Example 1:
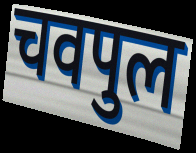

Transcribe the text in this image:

चवपुल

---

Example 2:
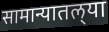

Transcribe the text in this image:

सामान्यातल्या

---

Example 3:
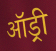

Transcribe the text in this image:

ऑड्री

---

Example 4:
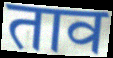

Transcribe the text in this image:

ताव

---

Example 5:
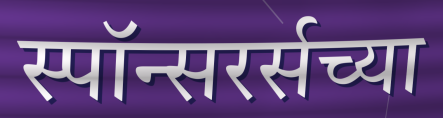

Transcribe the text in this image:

स्पॉन्सरर्सच्या